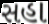
સહા